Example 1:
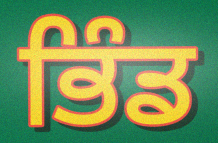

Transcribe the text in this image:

ਭਿੰਡ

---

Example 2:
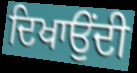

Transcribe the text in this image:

ਦਿਖਾਉਂਦੀ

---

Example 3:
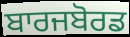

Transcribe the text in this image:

ਬਾਰਜਬੋਰਡ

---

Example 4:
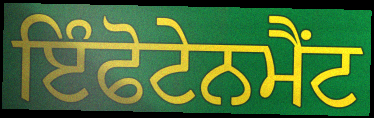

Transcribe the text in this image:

ਇੰਫੋਟੇਨਮੈਂਟ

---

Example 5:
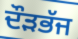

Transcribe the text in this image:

ਦੌੜਭੱਜ